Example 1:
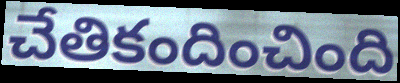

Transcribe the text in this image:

చేతికందించింది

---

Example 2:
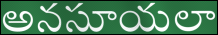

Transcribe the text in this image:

అనసూయలా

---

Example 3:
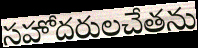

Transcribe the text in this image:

సహోదరులచేతను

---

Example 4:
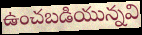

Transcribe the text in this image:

ఉంచబడియున్నవి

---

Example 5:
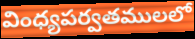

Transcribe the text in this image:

వింధ్యపర్వతములలో